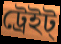
ট্রেইট্